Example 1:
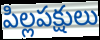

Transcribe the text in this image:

పిల్లపక్షులు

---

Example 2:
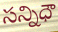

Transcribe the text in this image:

సన్నిధౌ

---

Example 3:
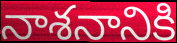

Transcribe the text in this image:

నాశనానికి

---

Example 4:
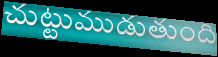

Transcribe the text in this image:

చుట్టుముడుతుంది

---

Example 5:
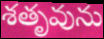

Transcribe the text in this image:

శతృవును